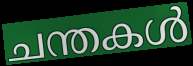
ചന്തകൾ